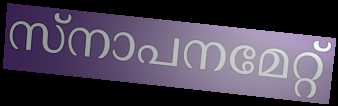
സ്നാപനമേറ്റ്